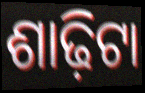
ଶାଢ଼ିଟା